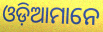
ଓଡ଼ିଆମାନେ